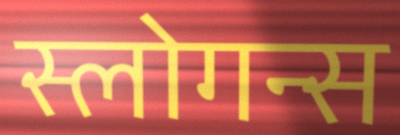
स्लोगन्स